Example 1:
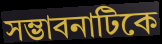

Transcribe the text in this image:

সম্ভাবনাটিকে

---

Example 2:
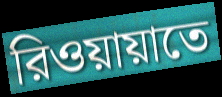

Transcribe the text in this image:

রিওয়ায়াতে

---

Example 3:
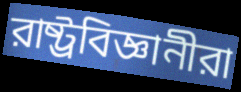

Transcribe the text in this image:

রাষ্ট্রবিজ্ঞানীরা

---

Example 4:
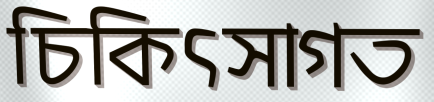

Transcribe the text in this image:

চিকিৎসাগত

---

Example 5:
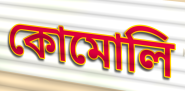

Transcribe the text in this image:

কোমোলি